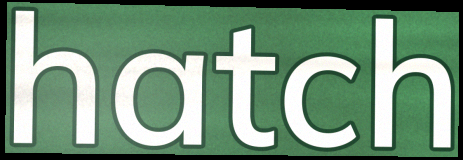
hatch